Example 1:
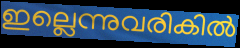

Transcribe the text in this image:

ഇല്ലെന്നുവരികിൽ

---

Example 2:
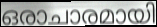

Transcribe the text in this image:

ഒരാചാരമായി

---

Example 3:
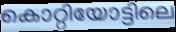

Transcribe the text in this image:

കൊറ്റിയോട്ടിലെ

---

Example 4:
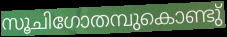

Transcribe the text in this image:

സൂചിഗോതമ്പുകൊണ്ടു്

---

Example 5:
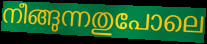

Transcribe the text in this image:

നീങ്ങുന്നതുപോലെ